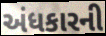
અંધકારની